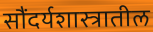
सौंदर्यशास्त्रातील